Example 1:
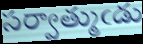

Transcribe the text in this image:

సర్వాత్ముఁడు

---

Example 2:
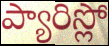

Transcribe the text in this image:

ప్యారిస్లో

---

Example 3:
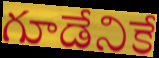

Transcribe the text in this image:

గూడేనికే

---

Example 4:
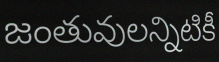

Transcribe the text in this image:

జంతువులన్నిటికీ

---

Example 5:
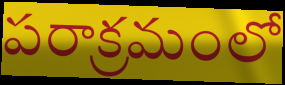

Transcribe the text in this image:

పరాక్రమంలో